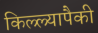
किल्ल्यापैकी